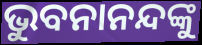
ଭୁବନାନନ୍ଦଙ୍କୁ